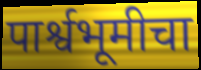
पार्श्वभूमीचा